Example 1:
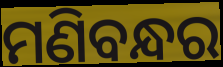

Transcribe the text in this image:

ମଣିବନ୍ଧର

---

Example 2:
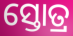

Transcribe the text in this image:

ସ୍ତୋତ୍ର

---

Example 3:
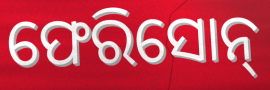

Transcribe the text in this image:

ଫେରିସୋନ୍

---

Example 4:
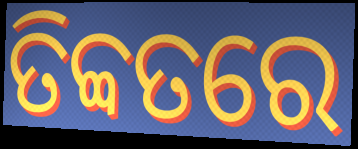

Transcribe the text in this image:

ତିବ୍ବତରେ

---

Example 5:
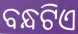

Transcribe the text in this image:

ବନ୍ଧଟିଏ